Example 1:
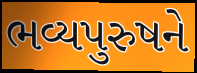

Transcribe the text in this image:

ભવ્યપુરુષને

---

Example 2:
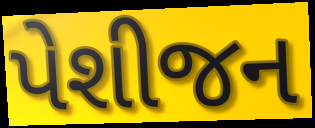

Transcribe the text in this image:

પેશીજન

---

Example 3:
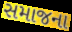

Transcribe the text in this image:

સમાજના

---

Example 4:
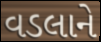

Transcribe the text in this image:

વડલાને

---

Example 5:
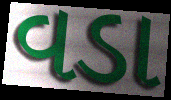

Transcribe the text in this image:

વડા